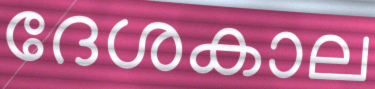
ദേശകാല